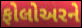
ફોલોઅરને